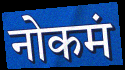
नोकमं